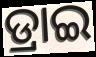
ଡ୍ରାଇ